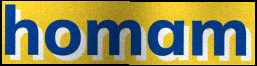
homam